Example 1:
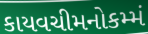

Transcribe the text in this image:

કાયવચીમનોકમ્મં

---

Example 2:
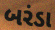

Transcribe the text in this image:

બરંડા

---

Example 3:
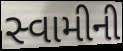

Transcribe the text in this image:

સ્વામીની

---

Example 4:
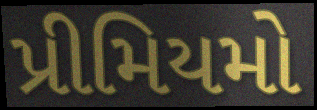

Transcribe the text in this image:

પ્રીમિયમો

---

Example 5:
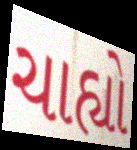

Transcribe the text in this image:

ચાહ્યો